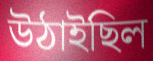
উঠাইছিল